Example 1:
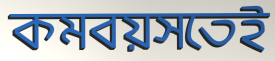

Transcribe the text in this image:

কমবয়সতেই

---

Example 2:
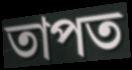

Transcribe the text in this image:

তাপত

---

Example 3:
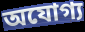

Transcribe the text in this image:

অযোগ্য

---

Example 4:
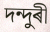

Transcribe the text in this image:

দন্দুৰী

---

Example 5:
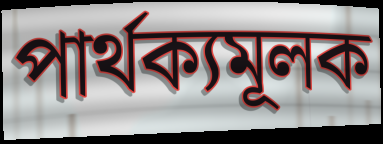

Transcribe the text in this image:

পাৰ্থক্যমূলক